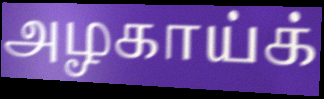
அழகாய்க்